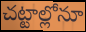
చట్టాల్లోనూ